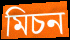
মিচন